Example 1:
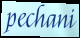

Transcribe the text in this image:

pechani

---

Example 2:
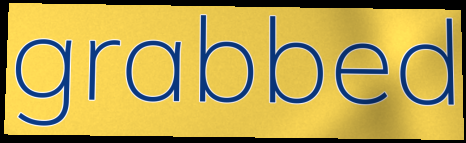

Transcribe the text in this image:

grabbed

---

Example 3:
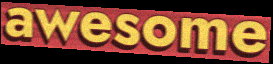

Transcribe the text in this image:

awesome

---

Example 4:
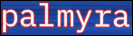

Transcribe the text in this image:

palmyra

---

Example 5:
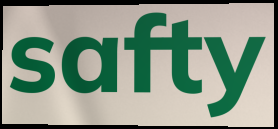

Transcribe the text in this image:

safty